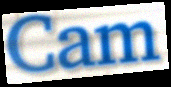
Cam